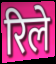
रिले